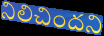
నిలిచిందని